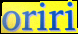
oriri